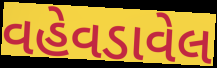
વહેવડાવેલ